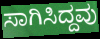
ಸಾಗಿಸಿದ್ದವು